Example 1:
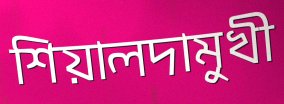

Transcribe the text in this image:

শিয়ালদামুখী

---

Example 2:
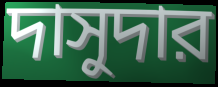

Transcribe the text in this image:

দাসুদার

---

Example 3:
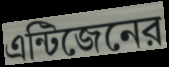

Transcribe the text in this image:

এন্টিজেনের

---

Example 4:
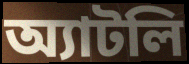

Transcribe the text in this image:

অ্যাটলি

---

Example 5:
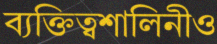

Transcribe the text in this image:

ব্যক্তিত্বশালিনীও